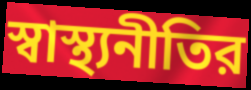
স্বাস্থ্যনীতির